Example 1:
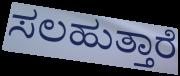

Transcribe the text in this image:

ಸಲಹುತ್ತಾರೆ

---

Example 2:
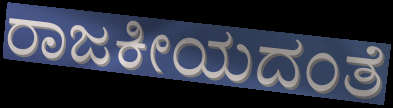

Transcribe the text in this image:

ರಾಜಕೀಯದಂತೆ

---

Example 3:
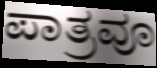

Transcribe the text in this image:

ಪಾತ್ರವೂ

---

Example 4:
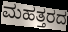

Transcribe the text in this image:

ಮಹತ್ತರದ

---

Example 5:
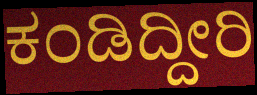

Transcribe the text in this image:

ಕಂಡಿದ್ದೀರಿ